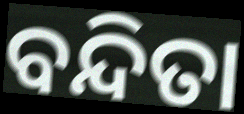
ବନ୍ଦିତା